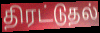
திரட்டுதல்